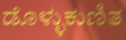
ಡೊಳ್ಳುಕುಣಿತ